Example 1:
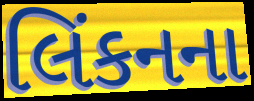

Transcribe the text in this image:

લિંકનના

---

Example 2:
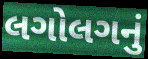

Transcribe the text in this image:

લગોલગનું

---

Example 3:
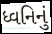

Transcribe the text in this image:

ધ્વનિનું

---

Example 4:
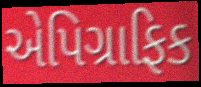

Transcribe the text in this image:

એપિગ્રાફિક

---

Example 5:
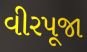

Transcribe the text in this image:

વીરપૂજા